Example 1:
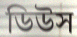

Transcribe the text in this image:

ডিউস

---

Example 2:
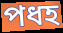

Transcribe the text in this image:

পধহ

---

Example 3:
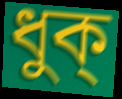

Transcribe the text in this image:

ধুক্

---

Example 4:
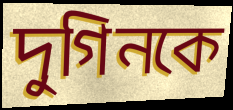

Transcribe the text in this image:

দুগিনকে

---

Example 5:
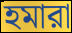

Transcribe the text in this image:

হমারা